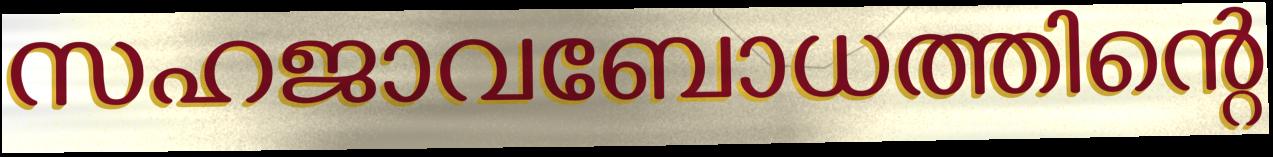
സഹജാവബോധത്തിന്റെ